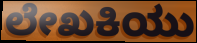
ಲೇಖಕಿಯು